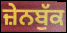
ਜ਼ੇਨਬੁੱਕ